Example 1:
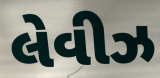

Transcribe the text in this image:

લેવીઝ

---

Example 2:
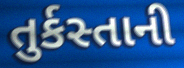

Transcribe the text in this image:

તુર્કસ્તાની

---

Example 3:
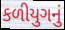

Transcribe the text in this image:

કળીયુગનું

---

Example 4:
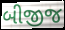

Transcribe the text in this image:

બીજીજ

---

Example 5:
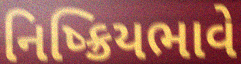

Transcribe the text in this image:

નિષ્ક્રિયભાવે